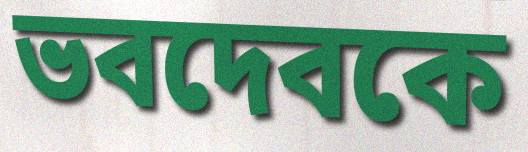
ভবদেবকে